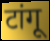
टांगू